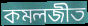
কমলজীত